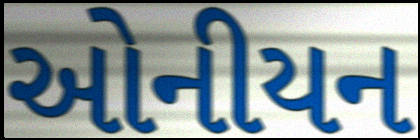
ઓનીયન